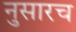
नुसारच